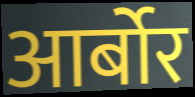
आर्बोर